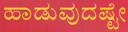
ಹಾಡುವುದಷ್ಟೇ